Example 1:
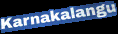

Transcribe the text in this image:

Karnakalangu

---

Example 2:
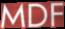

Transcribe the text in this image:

MDF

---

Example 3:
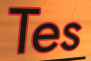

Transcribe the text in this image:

Tes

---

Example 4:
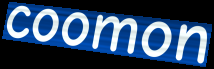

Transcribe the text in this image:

coomon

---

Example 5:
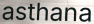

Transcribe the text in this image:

asthana